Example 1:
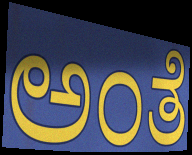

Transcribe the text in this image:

ಅಂತೆ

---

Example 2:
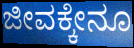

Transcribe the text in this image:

ಜೀವಕ್ಕೇನೂ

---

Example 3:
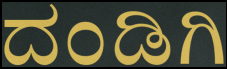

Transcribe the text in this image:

ದಂಡಿಗಿ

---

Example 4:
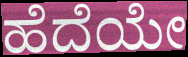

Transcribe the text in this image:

ಹೆದೆಯೇ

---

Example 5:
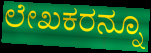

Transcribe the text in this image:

ಲೇಖಕರನ್ನೂ